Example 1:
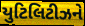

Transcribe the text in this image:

યુટિલિટીઝને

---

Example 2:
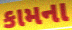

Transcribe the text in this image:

કામના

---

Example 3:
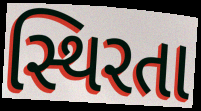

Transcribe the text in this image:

સ્થિરતા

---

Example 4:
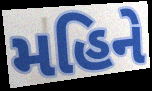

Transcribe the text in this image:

મહિને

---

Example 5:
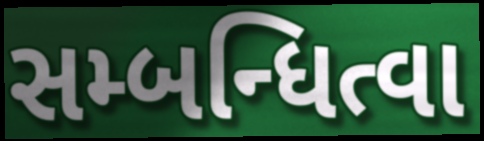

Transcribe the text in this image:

સમ્બન્ધિત્વા